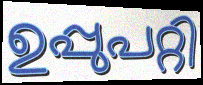
ഉപ്പുപറ്റി